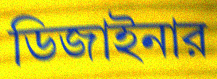
ডিজাইনার